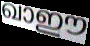
ഖാഈ